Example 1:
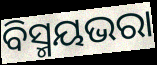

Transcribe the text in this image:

ବିସ୍ମୟଭରା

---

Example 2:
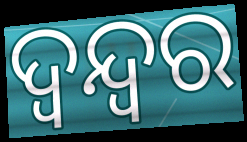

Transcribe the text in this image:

ଦ୍ଵନ୍ଦ୍ୱର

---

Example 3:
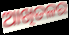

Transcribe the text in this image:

ଆଖିତଳର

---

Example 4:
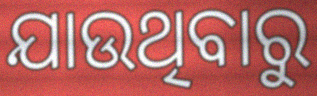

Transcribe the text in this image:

ଯାଉଥିବାରୁ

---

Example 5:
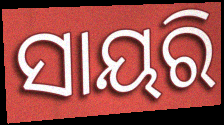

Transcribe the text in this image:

ସାୟରି